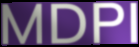
MDPI